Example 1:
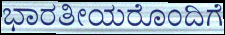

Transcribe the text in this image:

ಭಾರತೀಯರೊಂದಿಗೆ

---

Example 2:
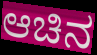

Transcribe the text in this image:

ಆಚಿನ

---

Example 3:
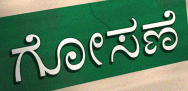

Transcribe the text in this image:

ಗೋಸಣೆ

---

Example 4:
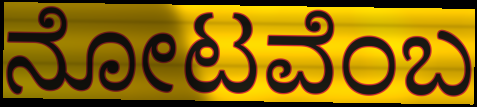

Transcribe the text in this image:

ನೋಟವೆಂಬ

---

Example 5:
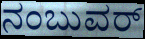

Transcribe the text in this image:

ನಂಬುವರ್